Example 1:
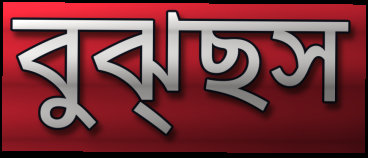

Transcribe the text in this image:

বুঝ্ছস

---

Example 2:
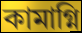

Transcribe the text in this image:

কামাগ্নি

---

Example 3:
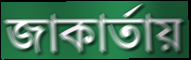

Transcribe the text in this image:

জাকার্তায়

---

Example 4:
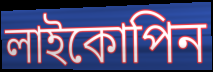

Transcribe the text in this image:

লাইকোপিন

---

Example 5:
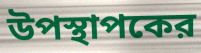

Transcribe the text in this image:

উপস্থাপকের